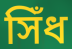
সিঁধ